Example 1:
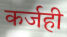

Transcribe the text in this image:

कर्जही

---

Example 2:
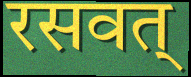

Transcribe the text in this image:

रसवत्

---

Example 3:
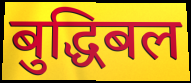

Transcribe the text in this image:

बुद्धिबल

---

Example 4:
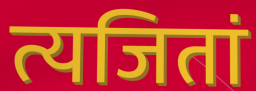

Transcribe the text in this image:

त्यजितां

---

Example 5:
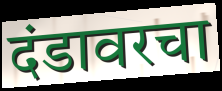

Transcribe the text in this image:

दंडावरचा